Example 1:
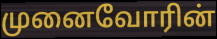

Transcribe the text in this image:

முனைவோரின்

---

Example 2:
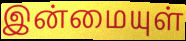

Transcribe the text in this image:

இன்மையுள்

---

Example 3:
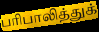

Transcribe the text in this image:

பரிபாலித்துக்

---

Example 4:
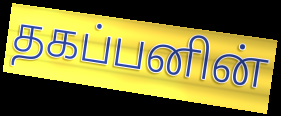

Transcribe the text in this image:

தகப்பனின்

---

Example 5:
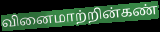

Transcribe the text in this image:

வினைமாற்றின்கண்